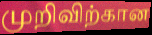
முறிவிற்கான